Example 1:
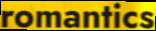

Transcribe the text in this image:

romantics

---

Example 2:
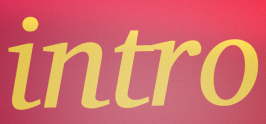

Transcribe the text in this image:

intro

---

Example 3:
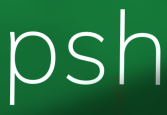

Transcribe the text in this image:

psh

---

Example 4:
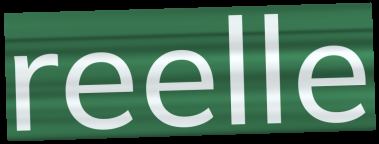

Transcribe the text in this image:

reelle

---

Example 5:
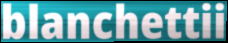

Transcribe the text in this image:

blanchettii